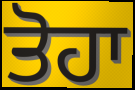
ਤੋਹਾ